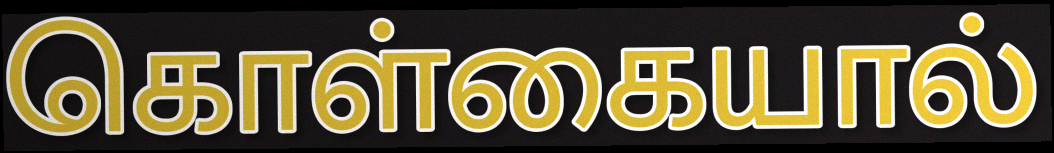
கொள்கையால்